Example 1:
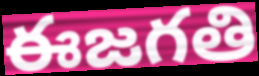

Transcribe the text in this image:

ఈజగతి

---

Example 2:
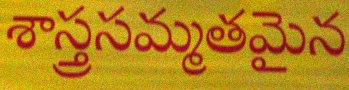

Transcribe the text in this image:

శాస్త్రసమ్మతమైన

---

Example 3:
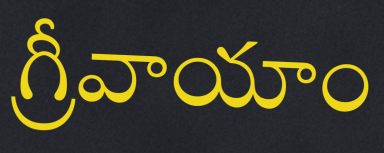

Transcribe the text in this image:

గ్రీవాయాం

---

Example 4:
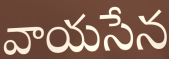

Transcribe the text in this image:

వాయసేన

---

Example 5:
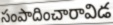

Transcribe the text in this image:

సంపాదించారావిడ